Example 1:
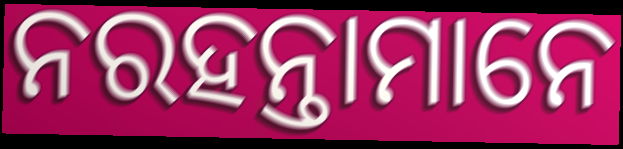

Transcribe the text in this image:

ନରହନ୍ତାମାନେ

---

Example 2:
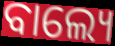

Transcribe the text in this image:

ବାଲ୍ୟେ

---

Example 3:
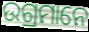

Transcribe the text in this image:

ଉଗ୍ରମାନେ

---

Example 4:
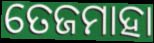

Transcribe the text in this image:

ତେଜମାହା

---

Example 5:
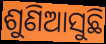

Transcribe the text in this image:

ଶୁଣିଆସୁଛି